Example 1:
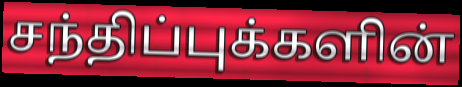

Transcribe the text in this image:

சந்திப்புக்களின்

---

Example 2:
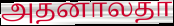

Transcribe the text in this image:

அதனாலதா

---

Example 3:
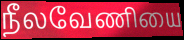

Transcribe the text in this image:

நீலவேணியை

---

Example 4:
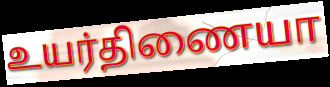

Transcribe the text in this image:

உயர்திணையா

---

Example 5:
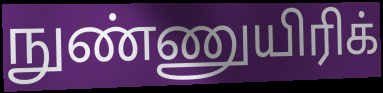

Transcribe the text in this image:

நுண்ணுயிரிக்